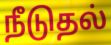
நீடுதல்